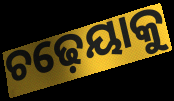
ଚଢ଼େୟାକୁ